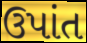
ઉપાંત